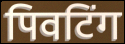
पिवटिंग